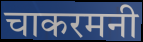
चाकरमनी